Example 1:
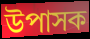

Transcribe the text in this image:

উপাসক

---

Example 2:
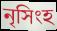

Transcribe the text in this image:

নৃসিংহ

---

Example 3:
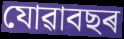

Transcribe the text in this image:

যোৱাবছৰ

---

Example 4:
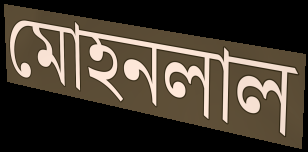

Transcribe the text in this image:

মোহনলাল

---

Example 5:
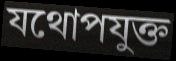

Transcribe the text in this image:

যথোপযুক্ত